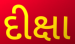
દીક્ષા